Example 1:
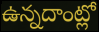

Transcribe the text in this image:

ఉన్నదాంట్లో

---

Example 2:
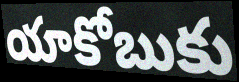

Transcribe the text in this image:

యాకోబుకు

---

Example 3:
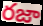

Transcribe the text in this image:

రజా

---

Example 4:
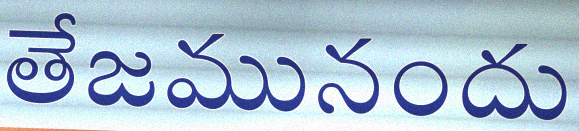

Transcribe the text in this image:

తేజమునందు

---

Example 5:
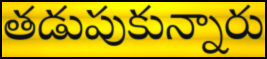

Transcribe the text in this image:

తడుపుకున్నారు